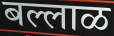
बल्लाळ